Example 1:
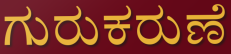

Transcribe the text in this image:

ಗುರುಕರುಣೆ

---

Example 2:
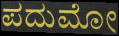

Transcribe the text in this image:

ಪದುಮೋ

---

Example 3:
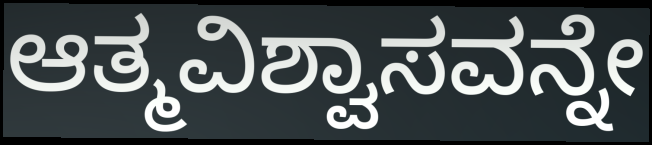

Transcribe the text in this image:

ಆತ್ಮವಿಶ್ವಾಸವನ್ನೇ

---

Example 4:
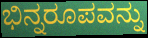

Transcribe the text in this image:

ಭಿನ್ನರೂಪವನ್ನು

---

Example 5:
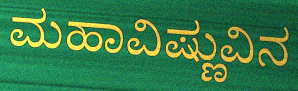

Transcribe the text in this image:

ಮಹಾವಿಷ್ಣುವಿನ